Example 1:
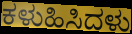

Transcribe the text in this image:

ಕಳುಹಿಸಿದಳು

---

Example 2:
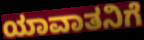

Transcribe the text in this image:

ಯಾವಾತನಿಗೆ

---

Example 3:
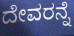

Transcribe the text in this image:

ದೇವರನ್ನೆ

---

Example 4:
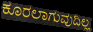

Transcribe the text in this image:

ಕೂರಲಾಗುವುದಿಲ್ಲ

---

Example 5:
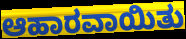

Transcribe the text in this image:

ಆಹಾರವಾಯಿತು